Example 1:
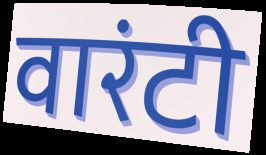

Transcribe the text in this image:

वारंटी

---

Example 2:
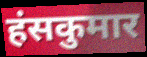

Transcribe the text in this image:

हंसकुमार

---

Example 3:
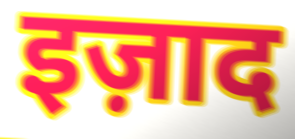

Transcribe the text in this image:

इज़ाद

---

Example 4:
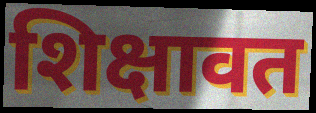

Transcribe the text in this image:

शिक्षावत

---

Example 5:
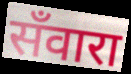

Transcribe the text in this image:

सँवारा